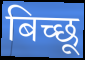
बिच्छू